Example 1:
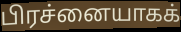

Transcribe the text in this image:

பிரச்னையாகக்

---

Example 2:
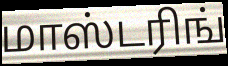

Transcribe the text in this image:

மாஸ்டரிங்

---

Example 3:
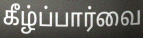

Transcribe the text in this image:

கீழ்ப்பார்வை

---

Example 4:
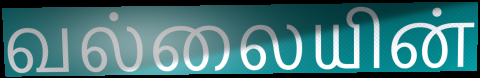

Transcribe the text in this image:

வல்லையின்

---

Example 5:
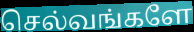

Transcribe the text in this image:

செல்வங்களே